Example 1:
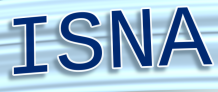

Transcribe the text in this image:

ISNA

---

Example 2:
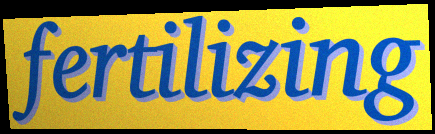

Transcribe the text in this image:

fertilizing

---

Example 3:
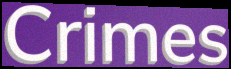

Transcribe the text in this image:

Crimes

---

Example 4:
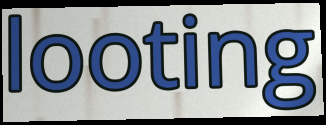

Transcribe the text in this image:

looting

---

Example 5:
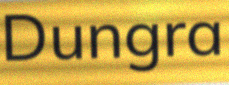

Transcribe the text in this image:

Dungra